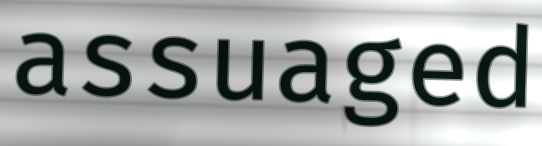
assuaged